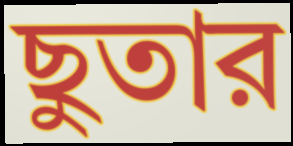
ছুতার